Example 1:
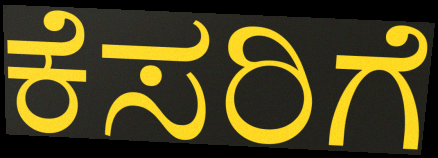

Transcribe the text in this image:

ಕೆಸರಿಗೆ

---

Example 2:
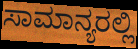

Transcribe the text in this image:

ಸಾಮಾನ್ಯರಲ್ಲಿ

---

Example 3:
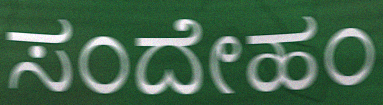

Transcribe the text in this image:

ಸಂದೇಹಂ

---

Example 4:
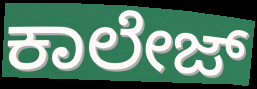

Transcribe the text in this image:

ಕಾಲೇಜ್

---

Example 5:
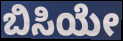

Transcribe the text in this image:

ಬಿಸಿಯೇ